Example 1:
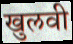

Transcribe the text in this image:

खुलवी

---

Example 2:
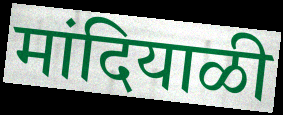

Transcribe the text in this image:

मांदियाळी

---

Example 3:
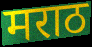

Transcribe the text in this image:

मराठ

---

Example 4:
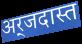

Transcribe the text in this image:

अर्जदास्त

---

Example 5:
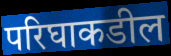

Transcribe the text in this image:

परिघाकडील